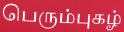
பெரும்புகழ்